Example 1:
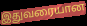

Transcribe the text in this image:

இதுவரையான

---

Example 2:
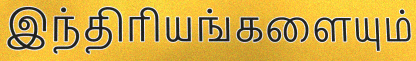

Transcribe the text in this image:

இந்திரியங்களையும்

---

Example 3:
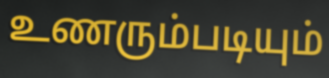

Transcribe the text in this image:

உணரும்படியும்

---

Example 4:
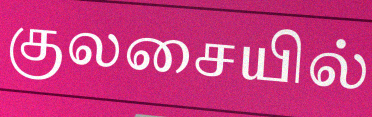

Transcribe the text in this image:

குலசையில்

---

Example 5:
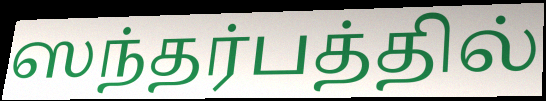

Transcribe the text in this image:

ஸந்தர்பத்தில்